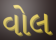
વોલ